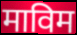
माविम